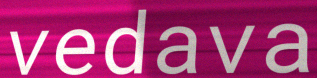
vedava